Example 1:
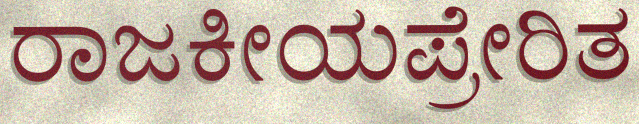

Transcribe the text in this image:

ರಾಜಕೀಯಪ್ರೇರಿತ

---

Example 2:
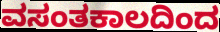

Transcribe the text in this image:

ವಸಂತಕಾಲದಿಂದ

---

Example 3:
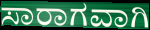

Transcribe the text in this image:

ಸಾರಾಗವಾಗಿ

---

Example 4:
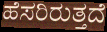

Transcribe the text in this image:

ಹೆಸರಿರುತ್ತದೆ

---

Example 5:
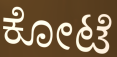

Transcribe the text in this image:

ಕೋಟೆ